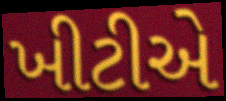
ખીટીએ